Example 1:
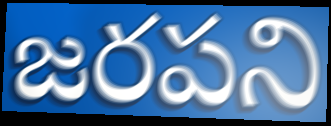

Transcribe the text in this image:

జరపని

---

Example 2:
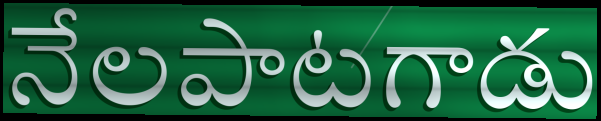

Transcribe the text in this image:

నేలపాటగాడు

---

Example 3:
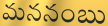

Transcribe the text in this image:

మననంబు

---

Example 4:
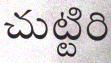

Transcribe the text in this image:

చుట్టిరి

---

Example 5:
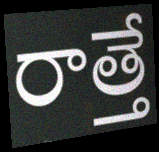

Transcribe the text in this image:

రాత్తే